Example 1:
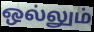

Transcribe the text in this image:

ஒல்லும்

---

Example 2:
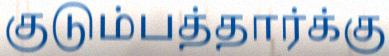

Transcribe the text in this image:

குடும்பத்தார்க்கு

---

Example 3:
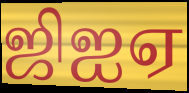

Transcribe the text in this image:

ஜிஐஏ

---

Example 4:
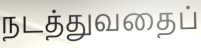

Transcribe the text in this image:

நடத்துவதைப்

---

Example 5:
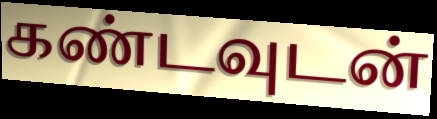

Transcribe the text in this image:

கண்டவுடன்